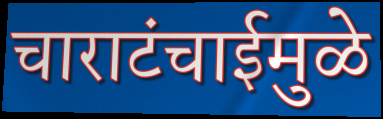
चाराटंचाईमुळे